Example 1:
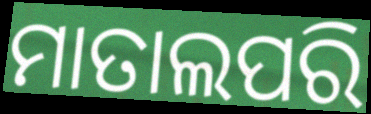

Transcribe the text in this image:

ମାତାଲପରି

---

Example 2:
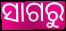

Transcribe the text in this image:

ସାଗରୁ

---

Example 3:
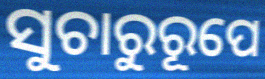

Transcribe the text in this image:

ସୁଚାରୁରୂପେ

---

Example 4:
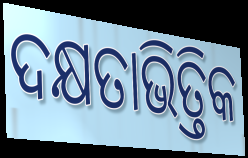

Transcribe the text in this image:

ଦକ୍ଷତାଭିତ୍ତିକ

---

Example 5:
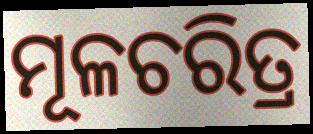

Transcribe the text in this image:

ମୂଳଚରିତ୍ର